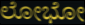
ಲೋಭೋ